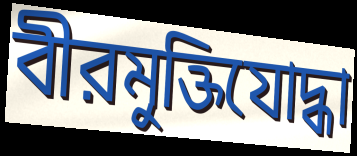
বীরমুক্তিযোদ্ধা